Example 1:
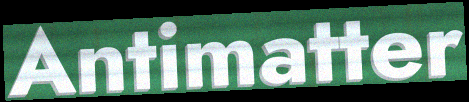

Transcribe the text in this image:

Antimatter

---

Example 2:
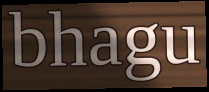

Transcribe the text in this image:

bhagu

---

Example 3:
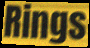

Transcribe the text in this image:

Rings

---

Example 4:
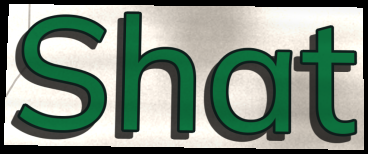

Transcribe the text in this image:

Shat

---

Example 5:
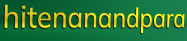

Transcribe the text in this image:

hitenanandpara